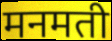
मनमती